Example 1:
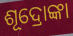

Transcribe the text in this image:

ଶୂଦ୍ରୋଙ୍କା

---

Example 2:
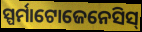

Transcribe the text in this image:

ସ୍ପର୍ମାଟୋଜେନେସିସ୍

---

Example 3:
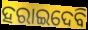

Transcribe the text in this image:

ହରାଇଦେବି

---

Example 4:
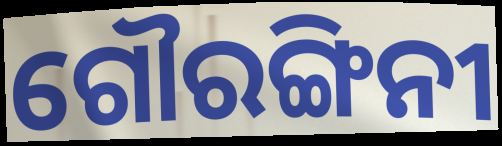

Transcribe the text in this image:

ଗୌରଙ୍ଗିନୀ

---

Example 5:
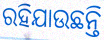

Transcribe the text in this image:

ରହିଯାଉଛନ୍ତି